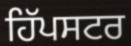
ਹਿੱਪਸਟਰ